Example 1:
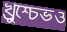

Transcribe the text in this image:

খ্রুশ্চেভও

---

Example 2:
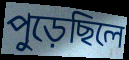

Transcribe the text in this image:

পুড়েছিলে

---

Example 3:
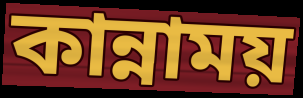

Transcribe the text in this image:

কান্নাময়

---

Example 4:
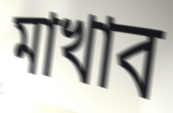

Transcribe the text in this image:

মাখাব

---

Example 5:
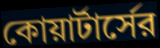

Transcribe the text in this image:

কোয়ার্টার্সের